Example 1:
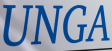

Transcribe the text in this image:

UNGA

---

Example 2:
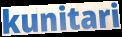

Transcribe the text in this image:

kunitari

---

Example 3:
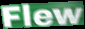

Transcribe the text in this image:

Flew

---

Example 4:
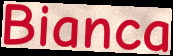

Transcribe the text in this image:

Bianca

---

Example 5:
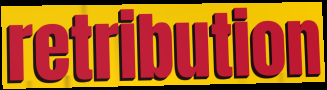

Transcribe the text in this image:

retribution